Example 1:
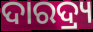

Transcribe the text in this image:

ଦାରଦ୍ର୍ୟ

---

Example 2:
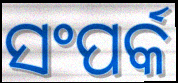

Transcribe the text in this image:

ସଂପର୍କ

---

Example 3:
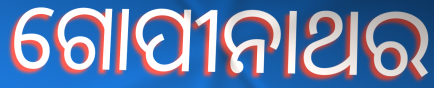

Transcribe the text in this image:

ଗୋପୀନାଥର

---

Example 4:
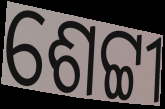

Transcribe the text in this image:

ଶେଟ୍ଟୀ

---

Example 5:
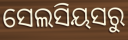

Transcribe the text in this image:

ସେଲସିୟସରୁ